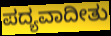
ಪದ್ಯವಾದೀತು